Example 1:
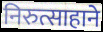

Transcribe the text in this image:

निरुत्साहाने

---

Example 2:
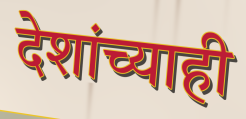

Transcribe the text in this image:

देशांच्याही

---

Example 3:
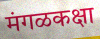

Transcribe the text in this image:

मंगळकक्षा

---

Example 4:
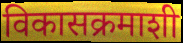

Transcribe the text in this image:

विकासक्रमाशी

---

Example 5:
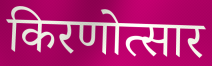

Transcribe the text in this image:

किरणोत्सार